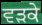
ਵੜਕੇ